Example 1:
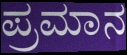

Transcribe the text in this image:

ಪ್ರಮಾನ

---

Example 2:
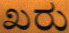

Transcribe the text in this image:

ಖರು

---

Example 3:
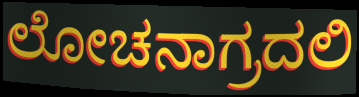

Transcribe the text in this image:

ಲೋಚನಾಗ್ರದಲಿ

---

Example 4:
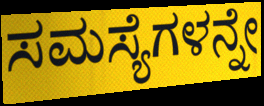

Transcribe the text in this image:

ಸಮಸ್ಯೆಗಳನ್ನೇ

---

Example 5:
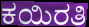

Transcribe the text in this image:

ಕಯಿರತಿ